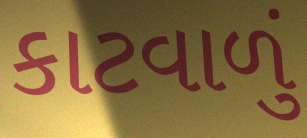
કાટવાળું